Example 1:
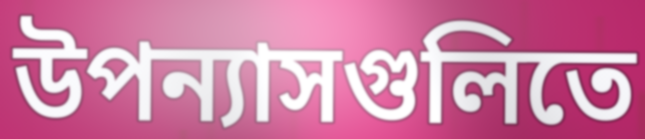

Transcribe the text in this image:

উপন্যাসগুলিতে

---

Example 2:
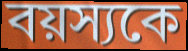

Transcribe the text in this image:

বয়স্যকে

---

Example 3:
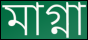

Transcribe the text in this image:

মাগ্না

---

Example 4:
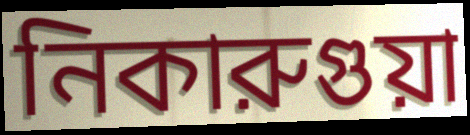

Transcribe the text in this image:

নিকারুগুয়া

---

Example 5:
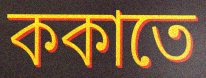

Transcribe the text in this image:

ককাতে